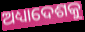
ଅଧ୍ୟାଦେଶକୁ